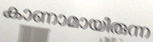
കാണാമായിരുന്ന